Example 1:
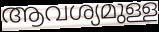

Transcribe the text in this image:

ആവശ്യമുള്ള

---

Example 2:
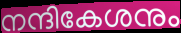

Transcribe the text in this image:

നന്ദികേശനും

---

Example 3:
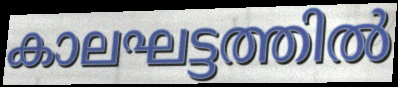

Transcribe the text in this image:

കാലഘട്ടത്തിൽ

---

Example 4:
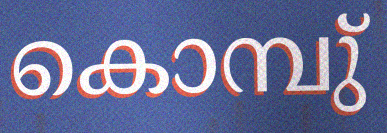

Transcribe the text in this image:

കൊമ്പു്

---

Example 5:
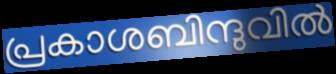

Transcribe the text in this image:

പ്രകാശബിന്ദുവിൽ